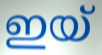
ഇയ്